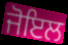
ਜੋਇਲ